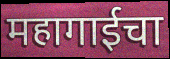
महागाईचा